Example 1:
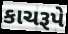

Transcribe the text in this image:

કાચરૂપે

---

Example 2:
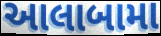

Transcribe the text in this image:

આલાબામા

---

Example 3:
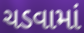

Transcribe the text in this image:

ચડવામાં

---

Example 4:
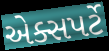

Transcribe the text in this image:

એક્સપર્ટે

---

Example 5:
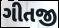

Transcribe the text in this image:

ગીતજી